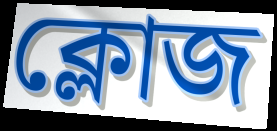
ক্লোজ